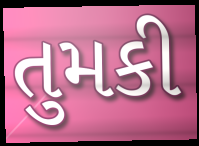
તુમકી